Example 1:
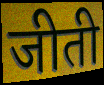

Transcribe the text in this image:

जीती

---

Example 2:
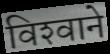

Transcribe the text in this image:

विश्वाने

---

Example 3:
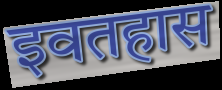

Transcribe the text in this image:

इवतहास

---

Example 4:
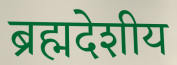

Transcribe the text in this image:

ब्रह्मदेशीय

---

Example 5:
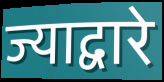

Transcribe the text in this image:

ज्याद्वारे